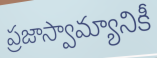
ప్రజాస్వామ్యానికీ